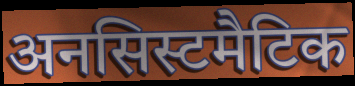
अनसिस्टमैटिक